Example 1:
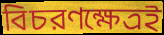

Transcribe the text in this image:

বিচরণক্ষেত্রই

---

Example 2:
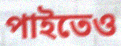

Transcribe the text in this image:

পাইতেও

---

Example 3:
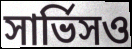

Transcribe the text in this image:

সার্ভিসও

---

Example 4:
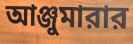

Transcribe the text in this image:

আঞ্জুমারার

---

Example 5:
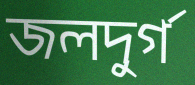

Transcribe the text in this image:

জলদুর্গ